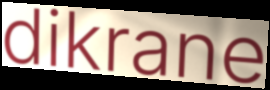
dikrane